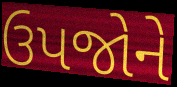
ઉપજોને